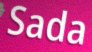
Sada